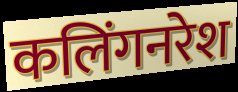
कलिंगनरेश